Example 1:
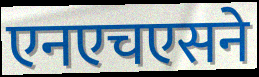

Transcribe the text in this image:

एनएचएसने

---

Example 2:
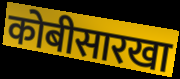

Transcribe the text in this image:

कोबीसारखा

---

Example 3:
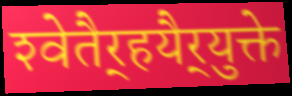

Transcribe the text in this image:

श्वेतैर्हयैर्युक्ते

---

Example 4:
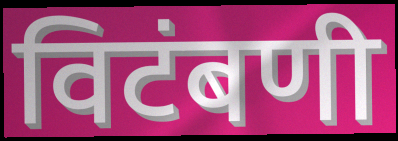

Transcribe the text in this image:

विटंबणी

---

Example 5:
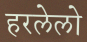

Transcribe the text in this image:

हरलेलो